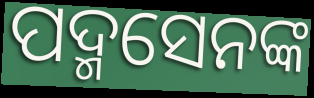
ପଦ୍ମସେନଙ୍କ